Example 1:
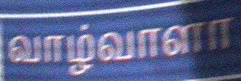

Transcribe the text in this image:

வாழ்வாளா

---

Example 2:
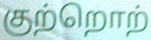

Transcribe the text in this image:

குற்றொற்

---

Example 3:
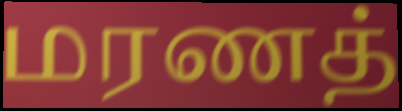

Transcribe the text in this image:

மரணத்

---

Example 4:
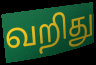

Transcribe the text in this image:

வறிது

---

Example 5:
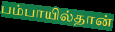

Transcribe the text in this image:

பம்பாயில்தான்